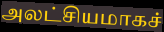
அலட்சியமாகச்